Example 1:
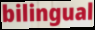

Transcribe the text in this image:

bilingual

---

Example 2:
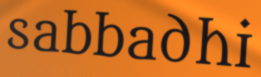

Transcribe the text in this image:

sabbadhi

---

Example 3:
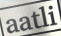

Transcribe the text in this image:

aatli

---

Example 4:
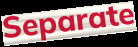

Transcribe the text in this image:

Separate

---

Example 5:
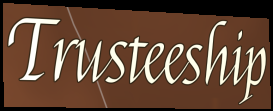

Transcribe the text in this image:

Trusteeship